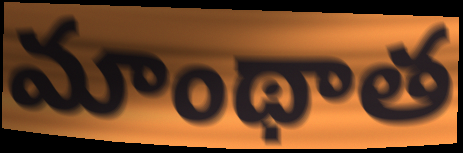
మాంథాత